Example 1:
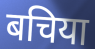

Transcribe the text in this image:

बचिया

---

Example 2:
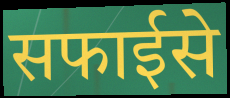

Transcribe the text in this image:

सफाईसे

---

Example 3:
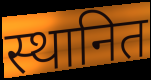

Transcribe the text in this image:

स्थानित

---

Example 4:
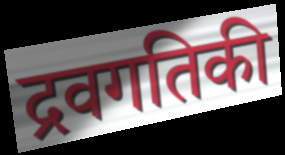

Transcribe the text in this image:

द्रवगतिकी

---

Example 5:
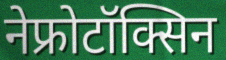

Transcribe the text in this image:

नेफ्रोटॉक्सिन